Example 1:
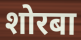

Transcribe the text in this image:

शोरबा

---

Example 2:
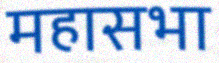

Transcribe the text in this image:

महासभा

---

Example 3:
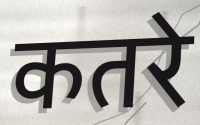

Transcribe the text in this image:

कतरे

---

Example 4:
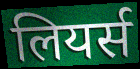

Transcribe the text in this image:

लियर्स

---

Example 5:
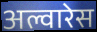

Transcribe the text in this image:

अल्वारेस